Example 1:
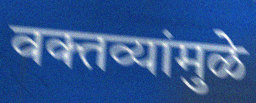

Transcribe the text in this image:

वक्तव्यांमुळे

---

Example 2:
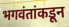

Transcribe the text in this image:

भगवंतांकडून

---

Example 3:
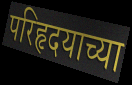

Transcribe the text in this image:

परिहृदयाच्या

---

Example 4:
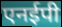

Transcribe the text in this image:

एनईपी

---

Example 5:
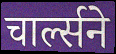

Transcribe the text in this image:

चार्ल्सने